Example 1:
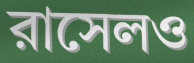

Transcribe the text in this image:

রাসেলও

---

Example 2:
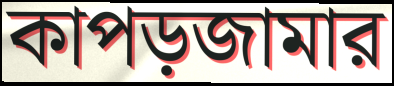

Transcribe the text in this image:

কাপড়জামার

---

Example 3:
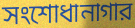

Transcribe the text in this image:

সংশোধানাগার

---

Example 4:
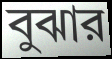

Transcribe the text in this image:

বুঝার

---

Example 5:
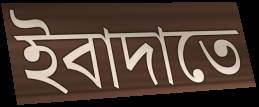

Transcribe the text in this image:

ইবাদাতে